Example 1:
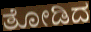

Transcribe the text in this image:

ತೋಡಿದ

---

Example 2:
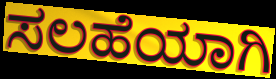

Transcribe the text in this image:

ಸಲಹೆಯಾಗಿ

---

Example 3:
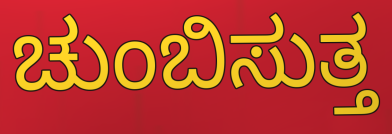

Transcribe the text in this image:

ಚುಂಬಿಸುತ್ತ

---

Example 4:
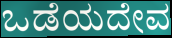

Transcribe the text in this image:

ಒಡೆಯದೇವ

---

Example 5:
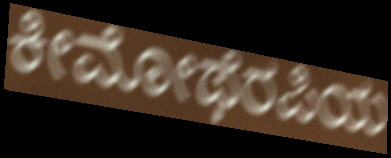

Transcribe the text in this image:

ಕೀಮೋಥೆರಪಿಯ